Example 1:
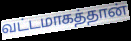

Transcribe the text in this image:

வட்டமாகத்தான்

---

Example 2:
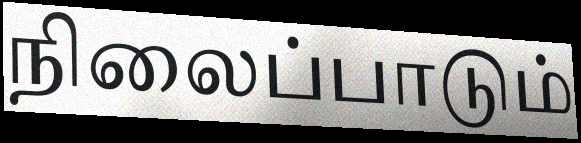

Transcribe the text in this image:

நிலைப்பாடும்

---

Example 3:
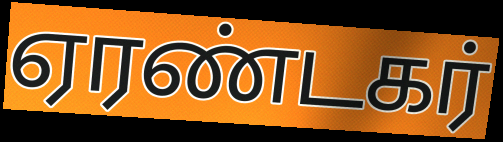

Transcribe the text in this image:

ஏரண்டகர்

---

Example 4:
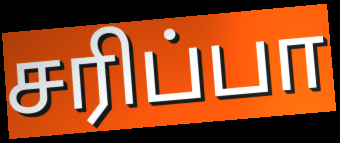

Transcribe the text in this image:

சரிப்பா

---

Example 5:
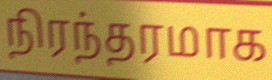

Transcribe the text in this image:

நிரந்தரமாக